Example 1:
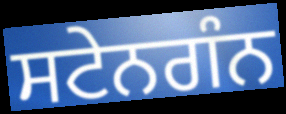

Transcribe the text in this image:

ਸਟੇਨਗੰਨ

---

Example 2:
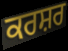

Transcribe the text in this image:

ਕਰਸ਼ਰ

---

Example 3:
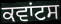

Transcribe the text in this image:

ਕਵਾਂਟਸ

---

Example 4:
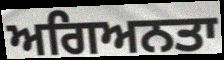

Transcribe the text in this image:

ਅਗਿਅਨਤਾ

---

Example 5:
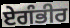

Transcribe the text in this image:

ਏਗੰਭੀਰ